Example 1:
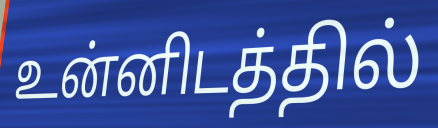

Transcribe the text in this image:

உன்னிடத்தில்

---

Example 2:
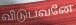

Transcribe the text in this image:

விடுபவனே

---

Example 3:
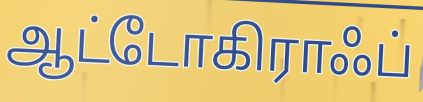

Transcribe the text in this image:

ஆட்டோகிராஃப்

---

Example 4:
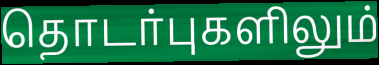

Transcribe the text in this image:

தொடர்புகளிலும்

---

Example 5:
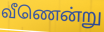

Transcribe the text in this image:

வீணென்று